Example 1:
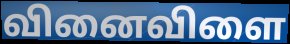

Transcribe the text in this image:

வினைவிளை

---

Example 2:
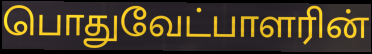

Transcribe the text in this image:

பொதுவேட்பாளரின்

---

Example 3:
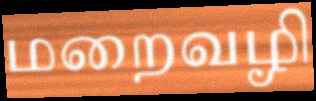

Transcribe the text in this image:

மறைவழி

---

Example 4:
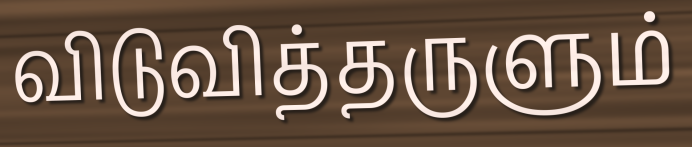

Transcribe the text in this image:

விடுவித்தருளும்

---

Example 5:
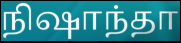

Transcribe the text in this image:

நிஷாந்தா